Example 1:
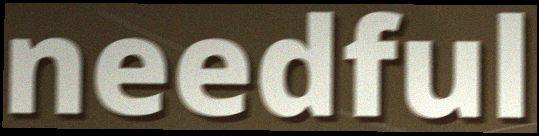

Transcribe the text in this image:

needful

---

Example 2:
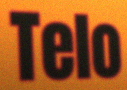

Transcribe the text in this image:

Telo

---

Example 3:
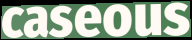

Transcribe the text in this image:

caseous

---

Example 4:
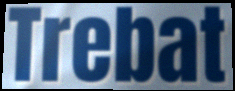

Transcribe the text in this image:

Trebat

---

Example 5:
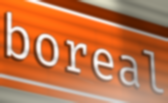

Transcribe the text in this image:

boreal